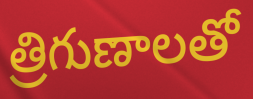
త్రిగుణాలతో